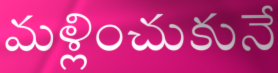
మళ్లించుకునే